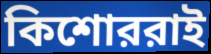
কিশোররাই